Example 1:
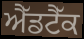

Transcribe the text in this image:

ਐੱਡਟੈੱਕ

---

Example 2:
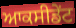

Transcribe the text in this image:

ਆਕਸੀਡੇਂਟ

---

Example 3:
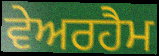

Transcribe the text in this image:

ਵੇਅਰਹੈਮ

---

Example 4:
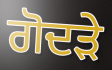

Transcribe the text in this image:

ਗੋਦੜੇ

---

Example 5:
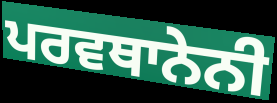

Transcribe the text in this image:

ਪਰਵਥਾਨੇਨੀ